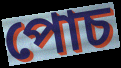
পোচ